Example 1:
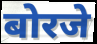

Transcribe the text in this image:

बोरजे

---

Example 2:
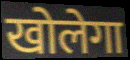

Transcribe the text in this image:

खोलेगा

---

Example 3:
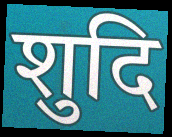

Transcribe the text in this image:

शुदि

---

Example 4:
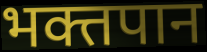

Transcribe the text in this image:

भक्तपान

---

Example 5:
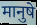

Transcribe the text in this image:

मानुषे